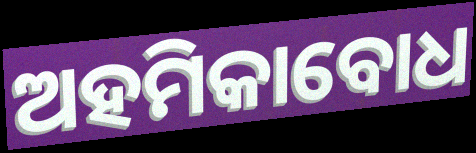
ଅହମିକାବୋଧ